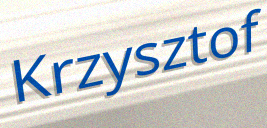
Krzysztof